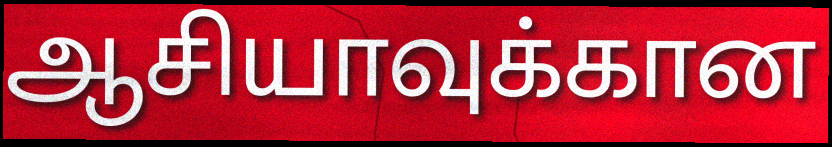
ஆசியாவுக்கான